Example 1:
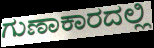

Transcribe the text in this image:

ಗುಣಾಕಾರದಲ್ಲಿ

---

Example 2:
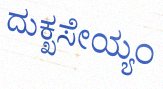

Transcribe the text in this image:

ದುಕ್ಖಸೇಯ್ಯಂ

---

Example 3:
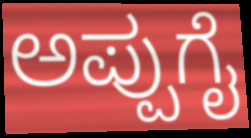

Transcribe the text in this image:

ಅಪ್ಪುಗೈ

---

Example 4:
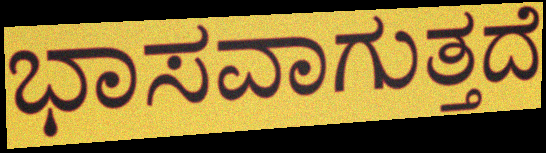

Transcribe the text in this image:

ಭಾಸವಾಗುತ್ತದೆ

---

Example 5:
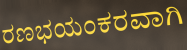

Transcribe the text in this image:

ರಣಭಯಂಕರವಾಗಿ